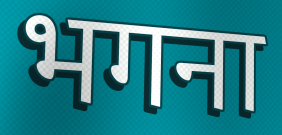
भगना